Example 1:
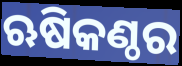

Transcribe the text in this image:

ଋଷିକଣ୍ଠର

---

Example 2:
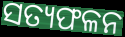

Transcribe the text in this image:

ସତ୍ୟଫଳନ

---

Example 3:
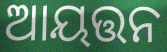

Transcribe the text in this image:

ଆୟତ୍ତନ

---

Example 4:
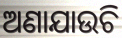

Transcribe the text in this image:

ଅଣାଯାଉଚି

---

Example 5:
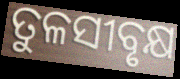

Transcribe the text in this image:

ତୁଳସୀବୃକ୍ଷ